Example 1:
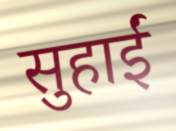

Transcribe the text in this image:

सुहाईं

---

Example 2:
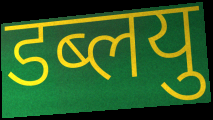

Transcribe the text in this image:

डब्लयु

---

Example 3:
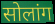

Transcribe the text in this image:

सोलांग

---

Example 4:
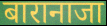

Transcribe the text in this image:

बारानाजा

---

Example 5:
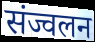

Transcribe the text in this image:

संज्वलन